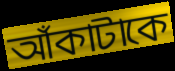
আঁকাটাকে